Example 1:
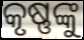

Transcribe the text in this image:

କୃଷ୍ଣଙ୍କୁ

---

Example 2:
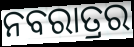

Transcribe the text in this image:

ନବରାତ୍ରର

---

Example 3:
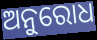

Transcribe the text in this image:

ଅନୁରୋଧ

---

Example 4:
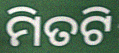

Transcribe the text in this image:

ମିତଟି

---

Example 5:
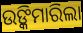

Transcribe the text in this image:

ଉଙ୍କିମାରିଲା